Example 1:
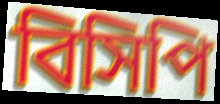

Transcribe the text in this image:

বিসিপি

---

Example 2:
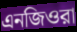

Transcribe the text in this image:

এনজিওরা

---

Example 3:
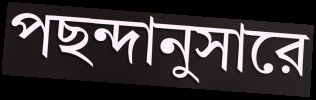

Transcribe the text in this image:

পছন্দানুসারে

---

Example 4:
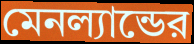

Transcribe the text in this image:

মেনল্যান্ডের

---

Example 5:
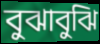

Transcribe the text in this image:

বুঝাবুঝি